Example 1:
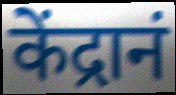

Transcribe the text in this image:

केंद्रानं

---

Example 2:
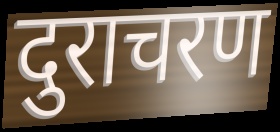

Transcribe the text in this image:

दुराचरण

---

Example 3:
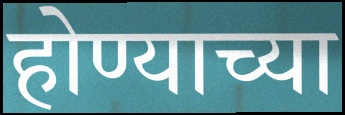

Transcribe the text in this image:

होण्‍याच्‍या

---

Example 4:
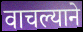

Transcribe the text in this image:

वाचल्याने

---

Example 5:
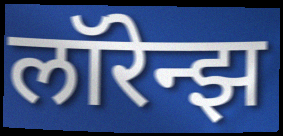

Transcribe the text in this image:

लॉरेन्झ